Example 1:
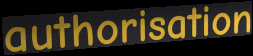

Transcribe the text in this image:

authorisation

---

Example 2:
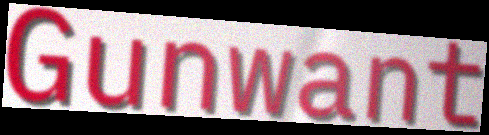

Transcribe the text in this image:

Gunwant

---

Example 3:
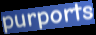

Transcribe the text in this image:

purports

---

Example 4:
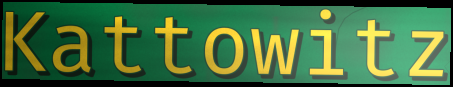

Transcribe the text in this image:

Kattowitz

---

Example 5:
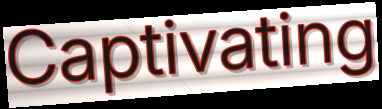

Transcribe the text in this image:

Captivating